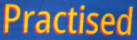
Practised